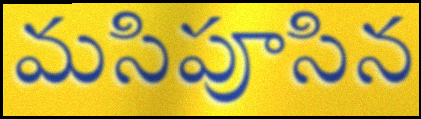
మసిపూసిన